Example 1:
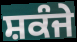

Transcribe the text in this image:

ਸ਼ਕੰਜੇ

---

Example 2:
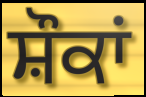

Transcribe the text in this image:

ਸ਼ੌਕਾਂ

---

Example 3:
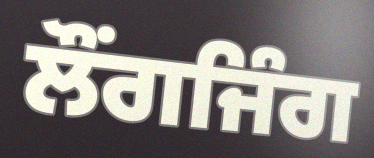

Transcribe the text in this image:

ਲੌਂਗਜਿੰਗ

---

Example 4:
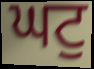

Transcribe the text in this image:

ਘਟੁ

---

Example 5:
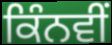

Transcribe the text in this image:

ਕਿੰਨਵੀਂ